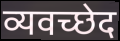
व्यवच्छेद